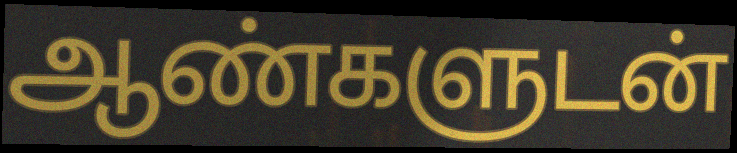
ஆண்களுடன்